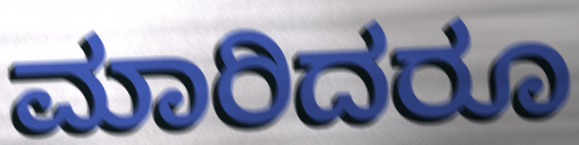
ಮಾರಿದರೂ